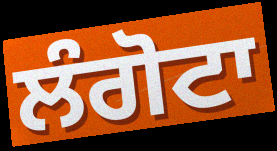
ਲੰਗੋਟਾ